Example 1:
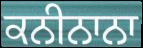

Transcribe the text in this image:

ਕਨੀਨਾਨਾ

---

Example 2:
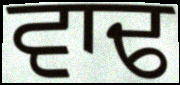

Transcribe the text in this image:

ਵਾਢ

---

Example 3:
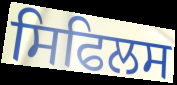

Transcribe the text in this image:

ਸਿਫਿਲਸ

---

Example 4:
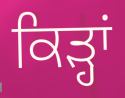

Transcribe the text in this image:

ਕਿੜ੍ਹਾਂ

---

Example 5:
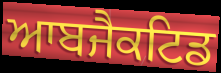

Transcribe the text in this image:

ਆਬਜੈਕਟਿਡ